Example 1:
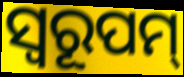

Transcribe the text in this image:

ସ୍ୱରୂପମ୍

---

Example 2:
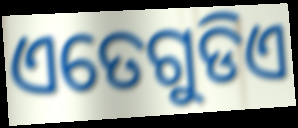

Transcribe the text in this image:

ଏତେଗୁଡିଏ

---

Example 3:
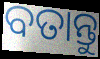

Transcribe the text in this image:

ବତାନ୍ତୁ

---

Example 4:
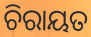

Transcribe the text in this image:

ଚିରାୟତ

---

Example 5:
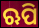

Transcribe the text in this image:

ଋପି